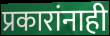
प्रकारांनाही